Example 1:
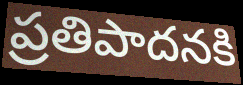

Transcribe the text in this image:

ప్రతిపాదనకి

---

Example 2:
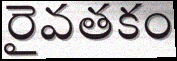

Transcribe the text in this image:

రైవతకం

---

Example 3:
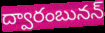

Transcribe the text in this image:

ద్వారంబునన్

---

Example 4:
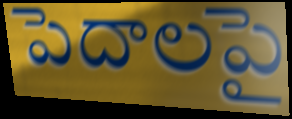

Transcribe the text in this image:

పెదాలపై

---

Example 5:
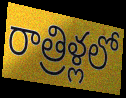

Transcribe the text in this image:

రాత్రిళ్లలో